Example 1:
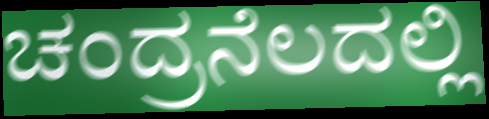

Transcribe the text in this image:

ಚಂದ್ರನೆಲದಲ್ಲಿ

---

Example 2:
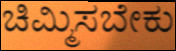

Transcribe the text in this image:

ಚಿಮ್ಮಿಸಬೇಕು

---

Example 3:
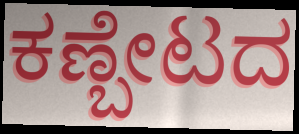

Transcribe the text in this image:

ಕಣ್ಬೇಟದ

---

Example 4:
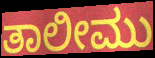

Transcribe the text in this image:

ತಾಲೀಮು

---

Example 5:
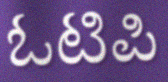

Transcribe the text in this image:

ಓಟಿಪಿ